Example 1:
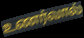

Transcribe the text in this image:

உணர்வால்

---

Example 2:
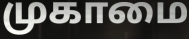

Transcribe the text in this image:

முகாமை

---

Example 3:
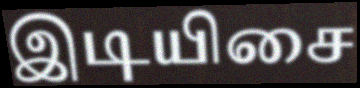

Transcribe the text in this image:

இடியிசை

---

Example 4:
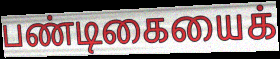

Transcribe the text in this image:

பண்டிகையைக்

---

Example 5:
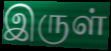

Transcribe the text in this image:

இருள்